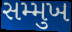
સમ્મુખ